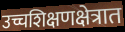
उच्चशिक्षणक्षेत्रात